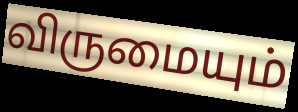
விருமையும்